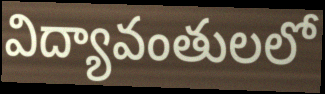
విద్యావంతులలో